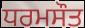
ਧਰਮਸੌਤ